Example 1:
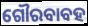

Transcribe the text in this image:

ଗୌରବାବହ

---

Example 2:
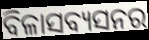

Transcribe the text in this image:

ବିଳାସବ୍ୟସନର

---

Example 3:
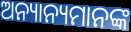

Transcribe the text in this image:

ଅନ୍ୟାନ୍ୟମାନଙ୍କ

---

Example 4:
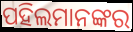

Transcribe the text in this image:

ପହିଲମାନଙ୍କର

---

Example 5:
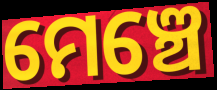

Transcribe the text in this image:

ମେଞ୍ଚେ